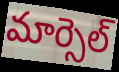
మార్సెల్